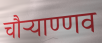
चौऱ्याण्णव